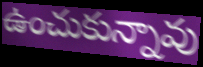
ఉంచుకున్నావు